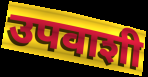
उपवाशी